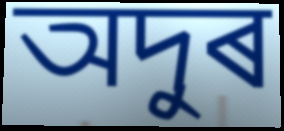
অদুৰ